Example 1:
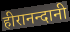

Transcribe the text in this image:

हीरानन्दानी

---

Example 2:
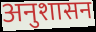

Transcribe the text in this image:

अनुशासन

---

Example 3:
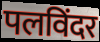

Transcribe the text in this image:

पलविंदर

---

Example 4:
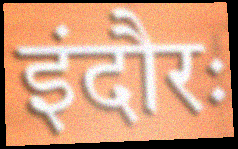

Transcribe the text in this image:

इंदौरः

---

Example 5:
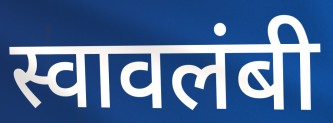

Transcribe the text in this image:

स्वावलंबी